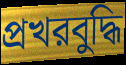
প্রখরবুদ্ধি